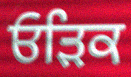
ਓੜਿਕ